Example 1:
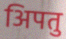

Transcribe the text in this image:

अिपतु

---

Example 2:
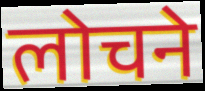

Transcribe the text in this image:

लोचने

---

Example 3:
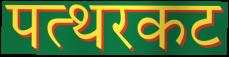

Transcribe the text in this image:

पत्थरकट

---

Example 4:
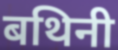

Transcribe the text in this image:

बथिनी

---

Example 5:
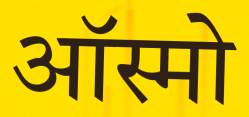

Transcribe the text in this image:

ऑस्मो